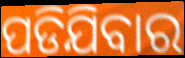
ପଡିଯିବାର